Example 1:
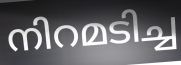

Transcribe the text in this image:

നിറമടിച്ച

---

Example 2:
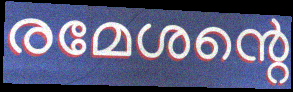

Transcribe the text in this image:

രമേശന്റെ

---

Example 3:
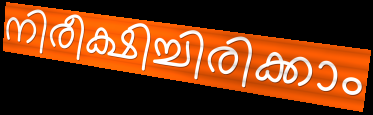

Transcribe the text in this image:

നിരീക്ഷിച്ചിരിക്കാം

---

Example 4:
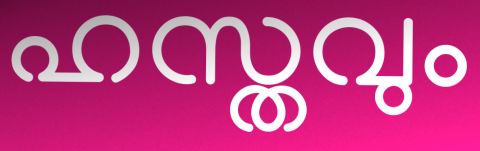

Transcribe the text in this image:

ഹസ്തവും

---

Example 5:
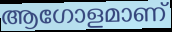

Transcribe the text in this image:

ആഗോളമാണ്